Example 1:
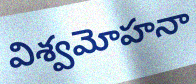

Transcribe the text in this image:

విశ్వమోహనా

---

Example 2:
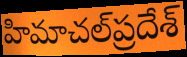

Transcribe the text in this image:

హిమాచల్‌ప్రదేశ్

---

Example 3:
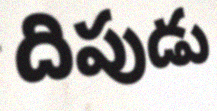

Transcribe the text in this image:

దిపుడు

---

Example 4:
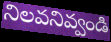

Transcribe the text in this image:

నిలవనివ్వండి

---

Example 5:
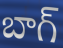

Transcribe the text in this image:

బాగ్